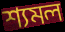
শ্যমল